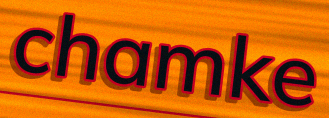
chamke